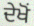
ਦੇਖੋਂ